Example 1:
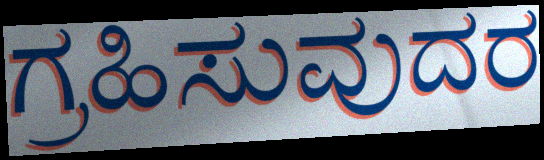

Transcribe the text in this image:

ಗ್ರಹಿಸುವುದರ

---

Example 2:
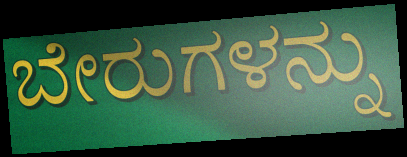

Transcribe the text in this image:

ಬೇರುಗಳನ್ನು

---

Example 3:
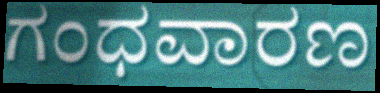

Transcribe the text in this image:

ಗಂಧವಾರಣ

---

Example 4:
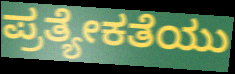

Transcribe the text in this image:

ಪ್ರತ್ಯೇಕತೆಯು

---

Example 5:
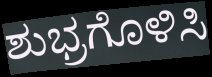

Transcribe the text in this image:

ಶುಭ್ರಗೊಳಿಸಿ